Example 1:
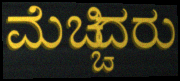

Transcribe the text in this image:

ಮೆಚ್ಚಿದರು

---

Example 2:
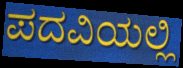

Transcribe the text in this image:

ಪದವಿಯಲ್ಲಿ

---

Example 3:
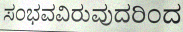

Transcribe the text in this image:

ಸಂಭವವಿರುವುದರಿಂದ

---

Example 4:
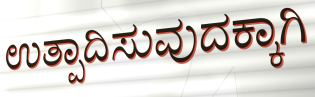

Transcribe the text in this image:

ಉತ್ಪಾದಿಸುವುದಕ್ಕಾಗಿ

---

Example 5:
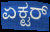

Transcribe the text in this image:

ಏಕ್ಟರ್